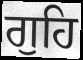
ਗੁਹਿ